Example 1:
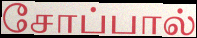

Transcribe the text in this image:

சோப்பால்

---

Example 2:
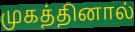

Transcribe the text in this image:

முகத்தினால்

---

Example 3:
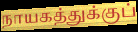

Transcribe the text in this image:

நாயகத்துக்குப்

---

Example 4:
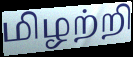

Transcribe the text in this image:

மிழற்றி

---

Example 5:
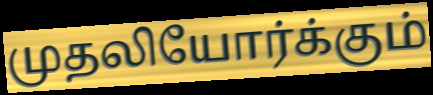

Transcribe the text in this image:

முதலியோர்க்கும்